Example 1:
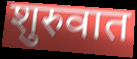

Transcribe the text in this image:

शुरुवात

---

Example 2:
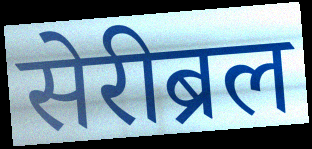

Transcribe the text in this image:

सेरीब्रल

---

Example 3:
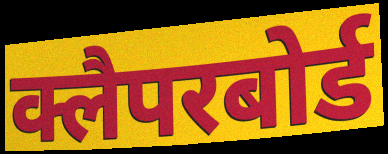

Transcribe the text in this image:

क्लैपरबोर्ड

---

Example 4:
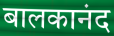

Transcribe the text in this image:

बालकानंद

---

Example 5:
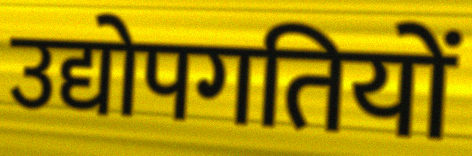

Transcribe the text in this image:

उद्योपगतियों